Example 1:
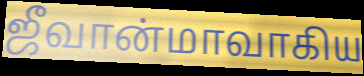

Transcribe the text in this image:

ஜீவான்மாவாகிய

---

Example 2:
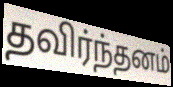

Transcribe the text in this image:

தவிர்ந்தனம்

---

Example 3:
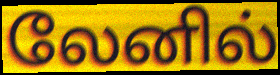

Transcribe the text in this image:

லேனில்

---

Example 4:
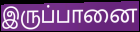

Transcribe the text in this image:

இருப்பானை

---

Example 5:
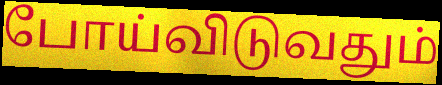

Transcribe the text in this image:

போய்விடுவதும்